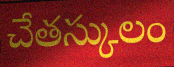
చేతస్కులం